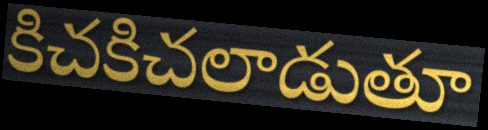
కిచకిచలాడుతూ